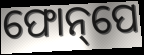
ଫୋନ୍‌ପେ